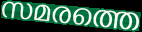
സമരത്തെ